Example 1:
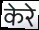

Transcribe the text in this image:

केरे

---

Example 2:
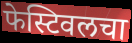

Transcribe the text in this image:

फेस्टिवलचा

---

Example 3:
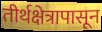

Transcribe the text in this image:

तीर्थक्षेत्रापासून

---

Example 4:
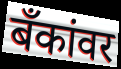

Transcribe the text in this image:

बँकांवर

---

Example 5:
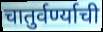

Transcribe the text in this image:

चातुर्वर्ण्याची